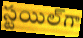
స్టయిల్‌గా